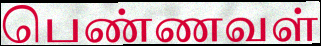
பெண்ணவள்